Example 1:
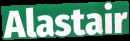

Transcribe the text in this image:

Alastair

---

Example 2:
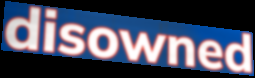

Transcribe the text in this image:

disowned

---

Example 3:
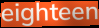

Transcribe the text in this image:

eighteen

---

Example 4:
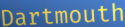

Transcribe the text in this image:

Dartmouth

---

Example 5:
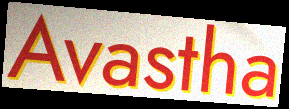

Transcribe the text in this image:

Avastha